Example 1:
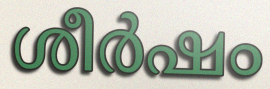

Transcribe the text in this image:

ശീർഷം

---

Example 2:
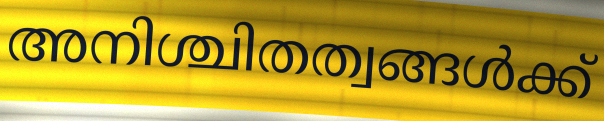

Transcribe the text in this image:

അനിശ്ചിതത്വങ്ങൾക്ക്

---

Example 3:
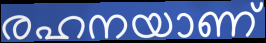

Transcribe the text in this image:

രഹനയാണ്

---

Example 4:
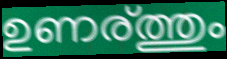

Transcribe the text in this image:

ഉണര്ത്തും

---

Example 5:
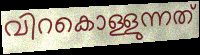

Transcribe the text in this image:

വിറകൊള്ളുന്നത്